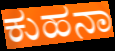
ಕುಹನಾ